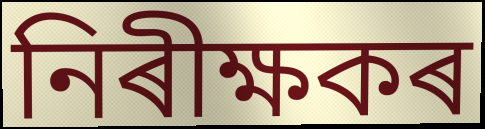
নিৰীক্ষকৰ